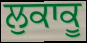
ਲੁਕਾਕੂ